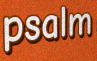
psalm